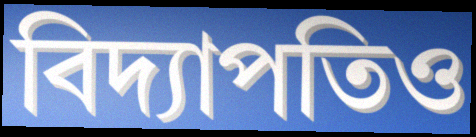
বিদ্যাপতিও